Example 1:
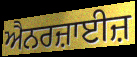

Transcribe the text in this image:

ਐਨਰਜ਼ਾਈਜ਼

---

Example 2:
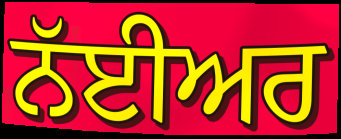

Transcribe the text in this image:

ਨੱਈਅਰ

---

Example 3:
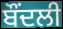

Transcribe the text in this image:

ਬੌਂਦਲੀ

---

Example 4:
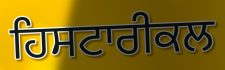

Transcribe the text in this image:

ਹਿਸਟਾਰੀਕਲ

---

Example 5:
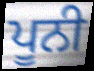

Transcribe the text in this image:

ਪੂਨੀ